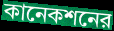
কানেকশনের